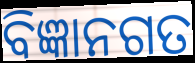
ବିଜ୍ଞାନଗତ